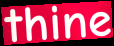
thine